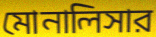
মোনালিসার